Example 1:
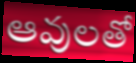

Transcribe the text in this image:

ఆవులతో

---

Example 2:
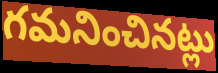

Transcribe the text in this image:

గమనించినట్లు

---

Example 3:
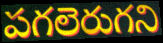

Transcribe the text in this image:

పగలెరుగని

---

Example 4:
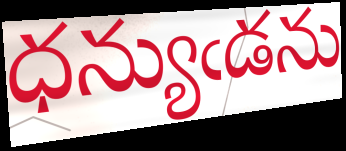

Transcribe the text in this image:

ధన్యుఁడను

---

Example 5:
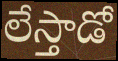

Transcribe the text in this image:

లేస్తాడో